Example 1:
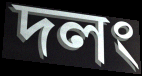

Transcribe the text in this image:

দলং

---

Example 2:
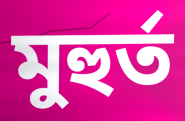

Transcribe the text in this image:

মুহুৰ্ত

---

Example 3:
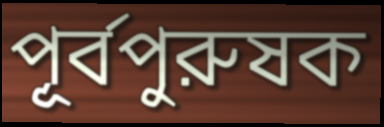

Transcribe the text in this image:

পূৰ্বপুৰুষক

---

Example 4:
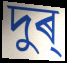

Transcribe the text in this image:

দুৰ্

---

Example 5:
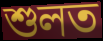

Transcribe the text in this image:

শুলত